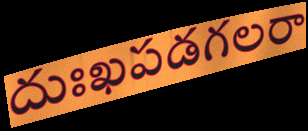
దుఃఖపడగలరా